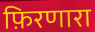
फ़िरणारा